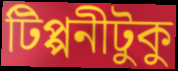
টিপ্পনীটুকু